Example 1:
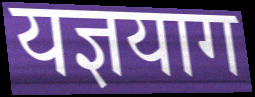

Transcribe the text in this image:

यज्ञयाग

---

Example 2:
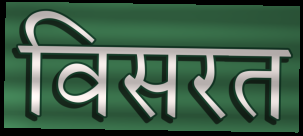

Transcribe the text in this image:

विसरत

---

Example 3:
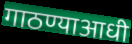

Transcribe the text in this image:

गाठण्याआधी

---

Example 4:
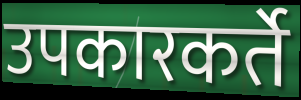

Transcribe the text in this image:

उपकारकर्ते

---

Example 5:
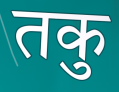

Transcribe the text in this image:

तकु